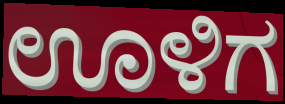
ಊಳಿಗ